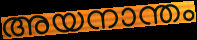
അയനാന്തം